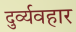
दुर्व्‍यवहार